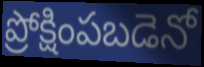
ప్రోక్షింపబడెనో